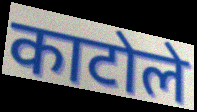
काटोले